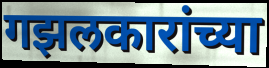
गझलकारांच्या